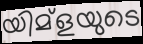
യിമ്ളയുടെ